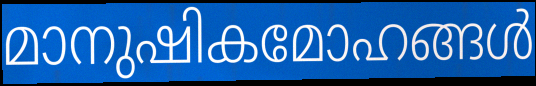
മാനുഷികമോഹങ്ങൾ